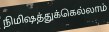
நிமிஷத்துக்கெல்லாம்